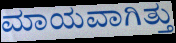
ಮಾಯವಾಗಿತ್ತು